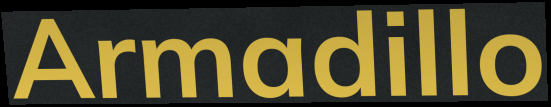
Armadillo